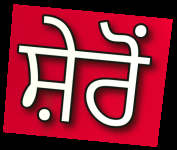
ਸ਼ੇਰੋਂ